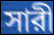
সারী